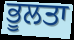
ਭੂਲਤਾ